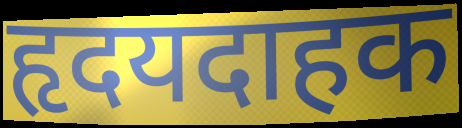
हृदयदाहक